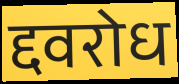
द्दवरोध